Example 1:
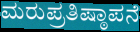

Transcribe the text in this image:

ಮರುಪ್ರತಿಷ್ಠಾಪನೆ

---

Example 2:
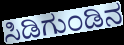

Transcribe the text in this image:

ಸಿಡಿಗುಂಡಿನ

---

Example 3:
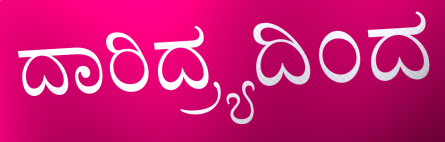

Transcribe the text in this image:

ದಾರಿದ್ರ್ಯದಿಂದ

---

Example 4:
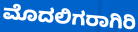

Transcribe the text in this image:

ಮೊದಲಿಗರಾಗಿರಿ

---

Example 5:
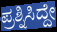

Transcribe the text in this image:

ಪ್ರಶ್ನಿಸಿದ್ದೇ